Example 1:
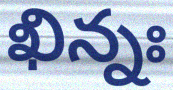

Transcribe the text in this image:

ఖిన్నః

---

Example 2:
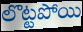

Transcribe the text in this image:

లొట్టపోయి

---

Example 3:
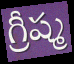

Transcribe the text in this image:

గ్రీష్మ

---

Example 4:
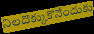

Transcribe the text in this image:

నిలదొక్కుకొనేందుకు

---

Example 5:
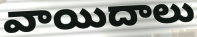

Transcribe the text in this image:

వాయిదాలు